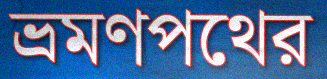
ভ্রমণপথের